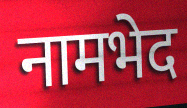
नामभेद